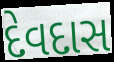
દેવદાસ